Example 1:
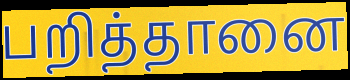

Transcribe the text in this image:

பறித்தானை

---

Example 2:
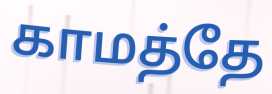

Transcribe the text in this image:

காமத்தே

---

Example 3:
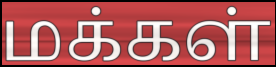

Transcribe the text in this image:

மக்கள்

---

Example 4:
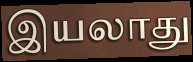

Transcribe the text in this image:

இயலாது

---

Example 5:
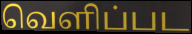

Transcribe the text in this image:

வெளிப்பட